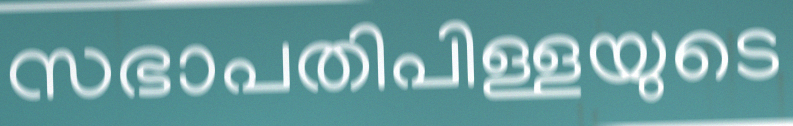
സഭാപതിപിള്ളയുടെ